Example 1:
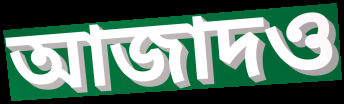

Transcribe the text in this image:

আজাদও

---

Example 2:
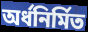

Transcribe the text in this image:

অর্ধনির্মিত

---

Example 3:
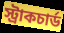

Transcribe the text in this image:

স্ট্রাকচার্ড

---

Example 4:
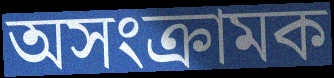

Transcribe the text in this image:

অসংক্রামক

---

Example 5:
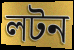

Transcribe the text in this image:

লটন